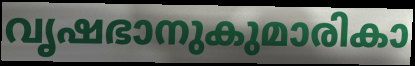
വൃഷഭാനുകുമാരികാ